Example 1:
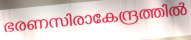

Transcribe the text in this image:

ഭരണസിരാകേന്ദ്രത്തിൽ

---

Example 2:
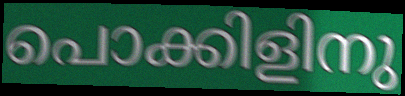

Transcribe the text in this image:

പൊക്കിളിനു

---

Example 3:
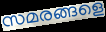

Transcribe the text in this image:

സമരങ്ങളെ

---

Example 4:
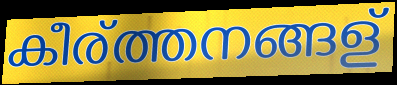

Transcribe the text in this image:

കീര്ത്തനങ്ങള്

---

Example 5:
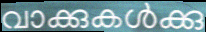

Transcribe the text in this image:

വാക്കുകൾക്കു